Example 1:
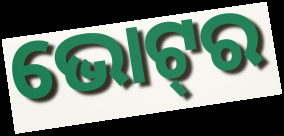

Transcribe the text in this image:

ଭୋଟ୍‍ର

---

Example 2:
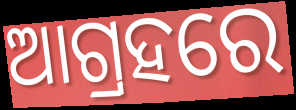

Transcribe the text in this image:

ଆଗ୍ରହରେ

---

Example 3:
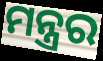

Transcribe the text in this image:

ମନ୍ତ୍ରର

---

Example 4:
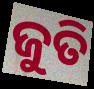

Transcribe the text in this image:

ଜୁତି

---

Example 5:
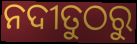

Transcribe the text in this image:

ନଦୀତୁଠରୁ